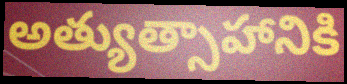
అత్యుత్సాహానికి